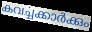
കവൎച്ചക്കാർക്കും